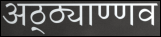
अठ्ठ्याण्णव